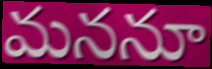
మననూ